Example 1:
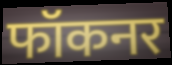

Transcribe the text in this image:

फॉकनर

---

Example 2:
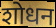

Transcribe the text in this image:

शोधन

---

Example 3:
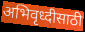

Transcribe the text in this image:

अभिवृध्दीसाठी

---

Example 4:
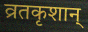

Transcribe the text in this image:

व्रतकृशान्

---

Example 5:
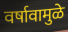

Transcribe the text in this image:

वर्षावामुळे